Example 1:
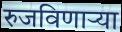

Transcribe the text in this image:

रुजविणाऱ्या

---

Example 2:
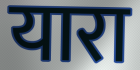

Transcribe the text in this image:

यारा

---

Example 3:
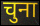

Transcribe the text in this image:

चुना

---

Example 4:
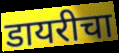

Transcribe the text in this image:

डायरीचा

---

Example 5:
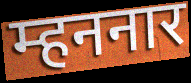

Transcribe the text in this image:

म्हननार